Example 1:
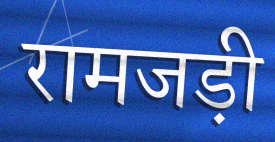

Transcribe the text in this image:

रामजड़ी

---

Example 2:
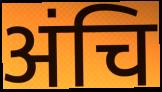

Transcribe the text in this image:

अंचि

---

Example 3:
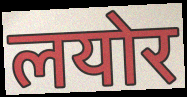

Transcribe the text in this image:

लयोर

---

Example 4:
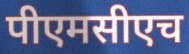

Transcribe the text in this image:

पीएमसीएच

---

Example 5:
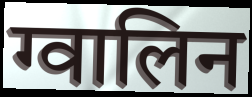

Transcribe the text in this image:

ग्वालिन